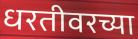
धरतीवरच्या